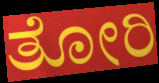
ತೋರಿ